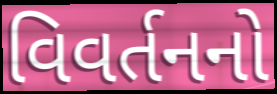
વિવર્તનનો